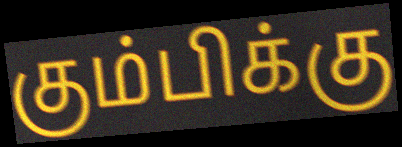
கும்பிக்கு